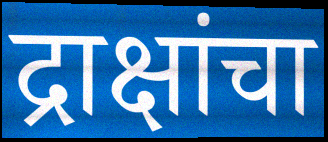
द्राक्षांचा